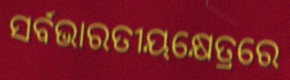
ସର୍ବଭାରତୀୟକ୍ଷେତ୍ରରେ